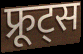
फ्रूट्स